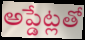
అప్డేట్లతో